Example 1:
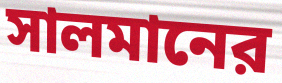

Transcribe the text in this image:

সালমানের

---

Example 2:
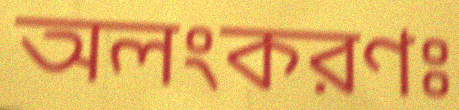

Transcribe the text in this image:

অলংকরণঃ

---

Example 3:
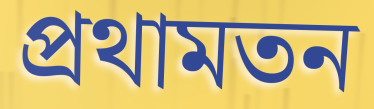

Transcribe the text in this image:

প্রথামতন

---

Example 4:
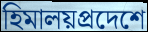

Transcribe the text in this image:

হিমালয়প্রদেশে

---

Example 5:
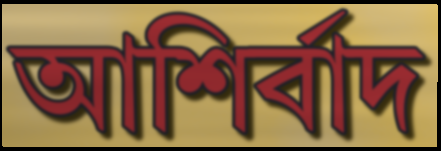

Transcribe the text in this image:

আশির্বাদ